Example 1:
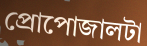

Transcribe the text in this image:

প্রোপোজালটা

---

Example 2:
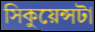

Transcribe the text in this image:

সিকুয়েন্সটা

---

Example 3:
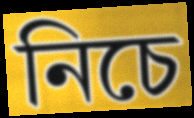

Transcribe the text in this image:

নিচে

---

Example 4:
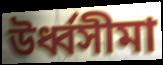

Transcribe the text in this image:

উর্ধ্বসীমা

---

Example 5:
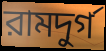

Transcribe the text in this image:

রামদুর্গ